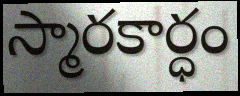
స్మారకార్ధం